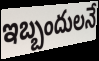
ఇబ్బందులనే